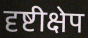
दृष्टीक्षेप